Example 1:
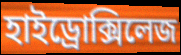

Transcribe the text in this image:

হাইড্রোক্সিলেজ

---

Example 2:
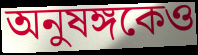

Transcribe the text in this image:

অনুষঙ্গকেও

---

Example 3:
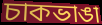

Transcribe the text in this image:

চাকভাঙা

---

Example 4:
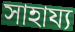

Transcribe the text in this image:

সাহায্য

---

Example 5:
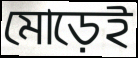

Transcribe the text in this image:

মোড়েই